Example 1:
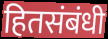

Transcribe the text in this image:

हितसंबंधी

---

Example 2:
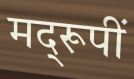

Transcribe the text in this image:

मद्‌रूपीं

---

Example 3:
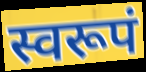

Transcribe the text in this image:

स्वरूपं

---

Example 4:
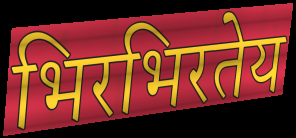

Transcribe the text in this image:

भिरभिरतेय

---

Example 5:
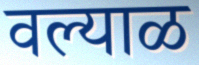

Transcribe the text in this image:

वल्याळ